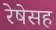
रेषेसह